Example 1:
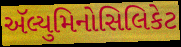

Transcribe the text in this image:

ઍલ્યુમિનોસિલિકેટ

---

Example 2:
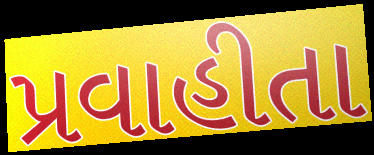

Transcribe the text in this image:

પ્રવાહીતા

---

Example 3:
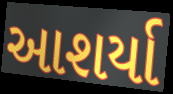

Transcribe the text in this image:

આશર્યા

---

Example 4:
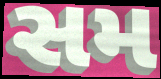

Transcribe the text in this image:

સમ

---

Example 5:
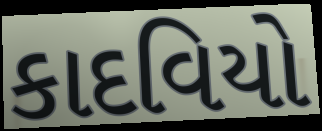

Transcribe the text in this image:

કાદવિયો